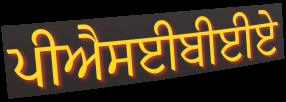
ਪੀਐਸਈਬੀਈਏ